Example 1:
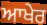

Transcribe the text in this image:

ਆਖੇਰ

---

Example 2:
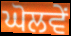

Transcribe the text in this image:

ਘੋਲਵੇਂ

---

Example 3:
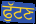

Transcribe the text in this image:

ਫੁੱਟਣ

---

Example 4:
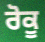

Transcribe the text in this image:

ਰੋਕੂ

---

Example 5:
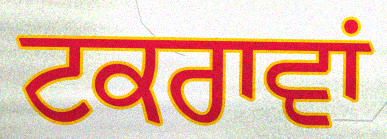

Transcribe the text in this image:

ਟਕਰਾਵਾਂ